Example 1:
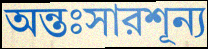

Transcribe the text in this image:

অন্তঃসারশূন্য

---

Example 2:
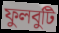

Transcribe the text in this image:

ফুলবুটি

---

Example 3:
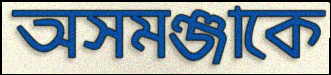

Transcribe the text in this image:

অসমঞ্জাকে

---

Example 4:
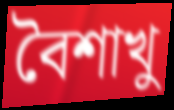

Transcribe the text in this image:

বৈশাখু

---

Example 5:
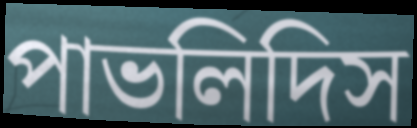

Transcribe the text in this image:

পাভলিদিস